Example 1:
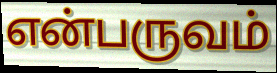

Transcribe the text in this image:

என்பருவம்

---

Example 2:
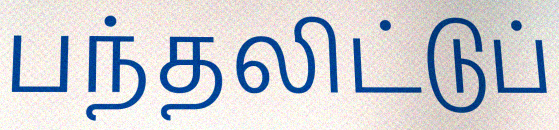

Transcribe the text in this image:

பந்தலிட்டுப்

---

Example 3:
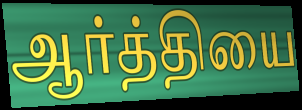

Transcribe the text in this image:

ஆர்த்தியை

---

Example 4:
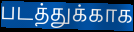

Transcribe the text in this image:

படத்துக்காக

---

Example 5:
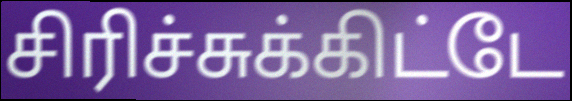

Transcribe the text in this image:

சிரிச்சுக்கிட்டே